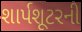
શાર્પશૂટરની